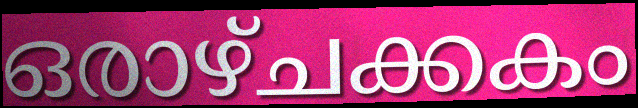
ഒരാഴ്ചക്കകം